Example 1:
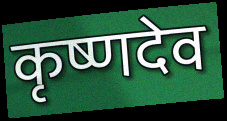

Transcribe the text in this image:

कृष्णदेव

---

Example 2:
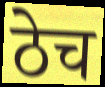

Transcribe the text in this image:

ठेच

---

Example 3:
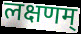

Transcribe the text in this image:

लक्षणम्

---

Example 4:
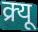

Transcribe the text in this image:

क्र्यू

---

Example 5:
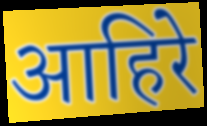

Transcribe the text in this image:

आहिरे